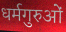
धर्मगुरुओं